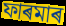
ফাৰমাৰ